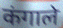
कंगाले